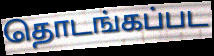
தொடங்கப்பட